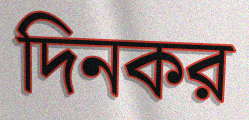
দিনকর